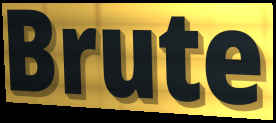
Brute